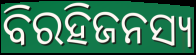
ବିରହିଜନସ୍ୟ